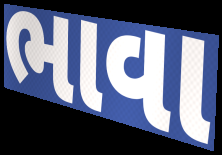
ભાવા